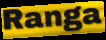
Ranga